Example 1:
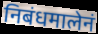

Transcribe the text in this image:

निबंधमालेनं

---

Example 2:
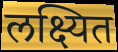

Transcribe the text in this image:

लक्ष्यित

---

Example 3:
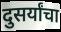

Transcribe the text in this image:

दुसर्यांचा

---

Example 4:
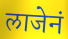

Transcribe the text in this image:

लाजेनं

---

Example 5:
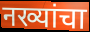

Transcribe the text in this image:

नख्यांचा